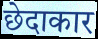
छेदाकार